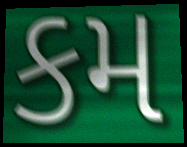
કમ